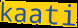
kaati